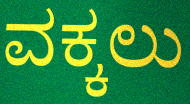
ವಕ್ಕಲು